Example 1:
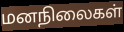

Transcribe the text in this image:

மனநிலைகள்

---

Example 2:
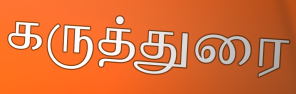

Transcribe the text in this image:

கருத்துரை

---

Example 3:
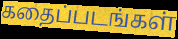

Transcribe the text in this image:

கதைப்படங்கள்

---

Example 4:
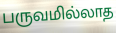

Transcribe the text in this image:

பருவமில்லாத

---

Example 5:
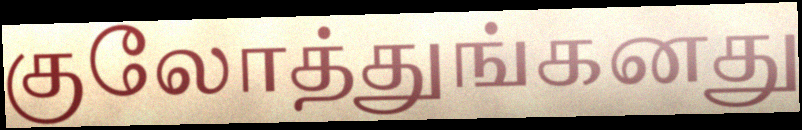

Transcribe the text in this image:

குலோத்துங்கனது